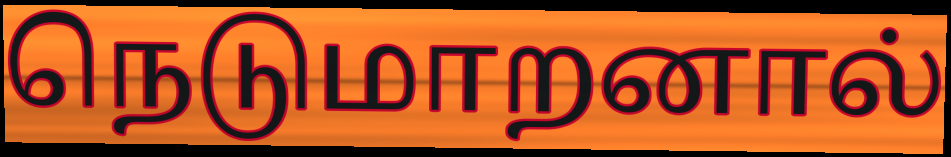
நெடுமாறனால்